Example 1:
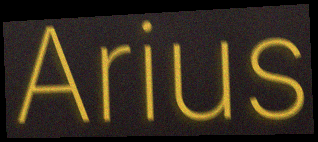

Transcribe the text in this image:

Arius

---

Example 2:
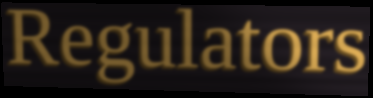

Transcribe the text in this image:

Regulators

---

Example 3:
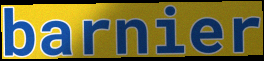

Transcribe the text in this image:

barnier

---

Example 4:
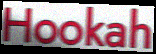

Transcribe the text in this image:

Hookah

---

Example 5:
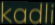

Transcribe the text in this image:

kadli